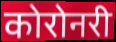
कोरोनरी